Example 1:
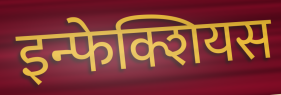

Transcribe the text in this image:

इन्फेक्शियस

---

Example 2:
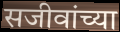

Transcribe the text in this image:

सजीवांच्या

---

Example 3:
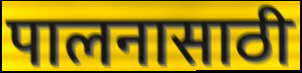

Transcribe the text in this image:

पालनासाठी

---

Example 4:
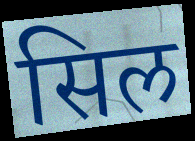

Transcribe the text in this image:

सिल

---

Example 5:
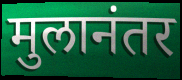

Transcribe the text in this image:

मुलानंतर